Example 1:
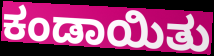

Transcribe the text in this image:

ಕಂಡಾಯಿತು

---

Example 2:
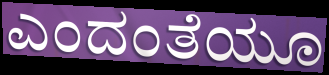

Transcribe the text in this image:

ಎಂದಂತೆಯೂ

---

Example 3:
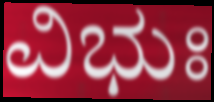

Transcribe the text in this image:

ವಿಭುಃ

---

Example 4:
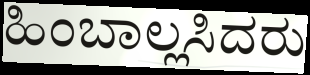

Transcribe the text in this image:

ಹಿಂಬಾಲ್ಲಸಿದರು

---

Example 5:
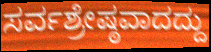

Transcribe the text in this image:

ಸರ್ವಶ್ರೇಷ್ಠವಾದದ್ದು